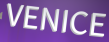
VENICE